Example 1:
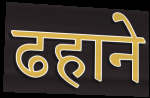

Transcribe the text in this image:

ढहाने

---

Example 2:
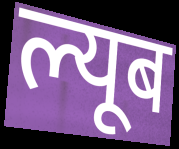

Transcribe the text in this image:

ल्यूब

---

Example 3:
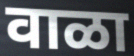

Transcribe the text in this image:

वाळा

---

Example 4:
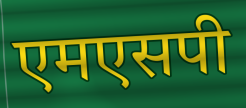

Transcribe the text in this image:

एमएसपी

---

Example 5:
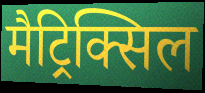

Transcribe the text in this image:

मैट्रिक्सिल